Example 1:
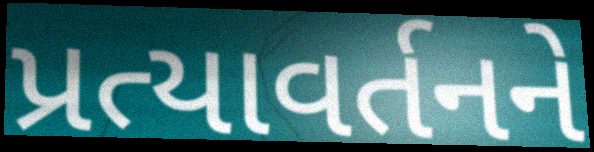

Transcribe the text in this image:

પ્રત્યાવર્તનને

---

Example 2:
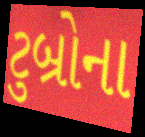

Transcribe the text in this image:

ટુબ્રોના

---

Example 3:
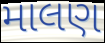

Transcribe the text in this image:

માલણ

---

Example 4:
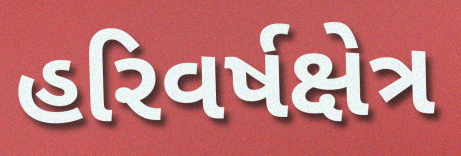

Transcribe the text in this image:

હરિવર્ષક્ષેત્ર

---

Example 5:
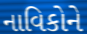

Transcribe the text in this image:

નાવિકોને